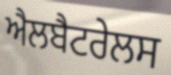
ਐਲਬੈਟਰੇਲਸ